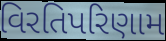
વિરતિપરિણામ